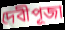
দেবীপূজা